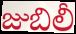
జుబిలీ